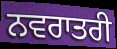
ਨਵਰਾਤਰੀ